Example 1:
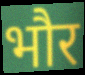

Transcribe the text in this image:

भौर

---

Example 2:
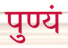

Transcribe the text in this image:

पुण्यं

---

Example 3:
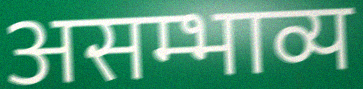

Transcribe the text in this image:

असम्भाव्य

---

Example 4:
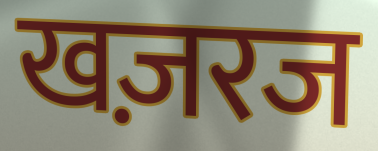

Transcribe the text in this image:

खज़रज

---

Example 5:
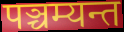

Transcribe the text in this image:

पञ्चम्यन्त